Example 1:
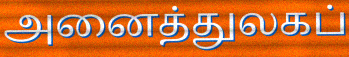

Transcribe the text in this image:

அனைத்துலகப்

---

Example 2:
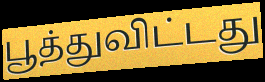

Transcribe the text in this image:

பூத்துவிட்டது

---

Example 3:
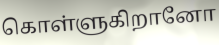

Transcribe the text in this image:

கொள்ளுகிறானோ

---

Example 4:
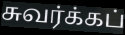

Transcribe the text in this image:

சுவர்க்கப்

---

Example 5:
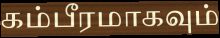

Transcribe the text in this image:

கம்பீரமாகவும்